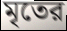
মৃতের